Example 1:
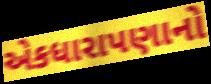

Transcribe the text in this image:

એકધારાપણાનો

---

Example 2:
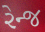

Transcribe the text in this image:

રેન્જ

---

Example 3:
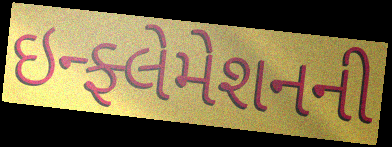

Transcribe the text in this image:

ઇન્ફ્લેમેશનની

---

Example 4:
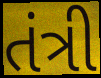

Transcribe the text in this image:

તંત્રી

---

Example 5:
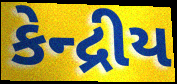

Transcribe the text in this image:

કેન્દ્રીય